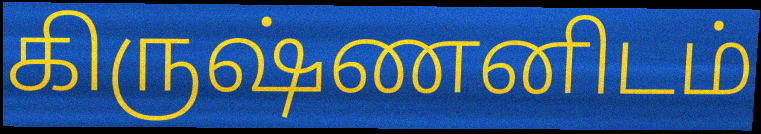
கிருஷ்ணனிடம்